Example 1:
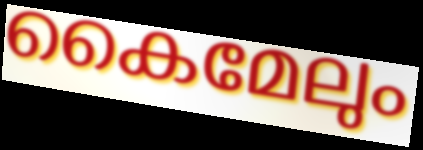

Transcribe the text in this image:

കൈമേലും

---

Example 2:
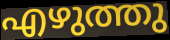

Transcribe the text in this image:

എഴുത്തു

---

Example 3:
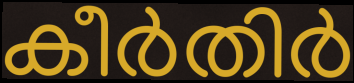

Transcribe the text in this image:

കീർതിർ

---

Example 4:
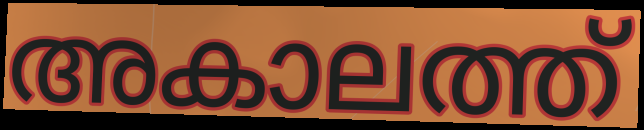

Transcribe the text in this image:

അകാലത്ത്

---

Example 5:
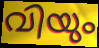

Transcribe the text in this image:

വിയും